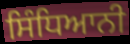
ਸਿੰਧਿਆਨੀ